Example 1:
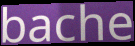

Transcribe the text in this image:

bache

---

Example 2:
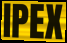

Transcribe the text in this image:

IPEX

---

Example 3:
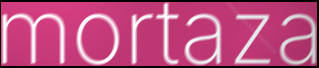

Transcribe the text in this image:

mortaza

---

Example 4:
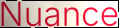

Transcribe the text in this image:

Nuance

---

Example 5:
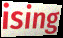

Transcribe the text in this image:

ising